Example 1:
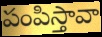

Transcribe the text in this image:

పంపిస్తావా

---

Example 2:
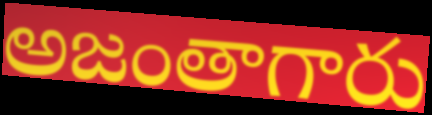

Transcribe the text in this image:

అజంతాగారు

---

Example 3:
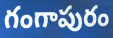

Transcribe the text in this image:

గంగాపురం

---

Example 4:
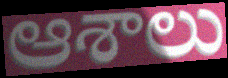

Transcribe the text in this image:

ఆశాలు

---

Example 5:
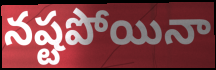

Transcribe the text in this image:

నష్టపోయినా